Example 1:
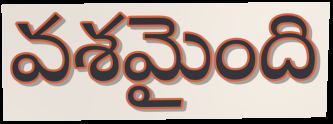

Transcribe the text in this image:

వశమైంది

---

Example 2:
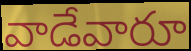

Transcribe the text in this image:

వాడేవారూ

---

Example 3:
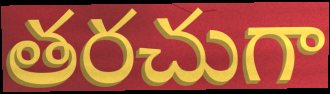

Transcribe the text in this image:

తరచుగా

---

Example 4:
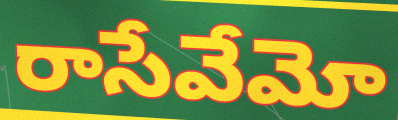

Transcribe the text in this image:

రాసేవేమో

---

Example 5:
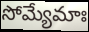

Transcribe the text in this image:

సోమ్యేమాః